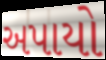
અપાયો